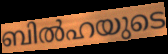
ബിൽഹയുടെ